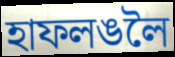
হাফলঙলৈ